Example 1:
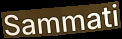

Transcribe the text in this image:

Sammati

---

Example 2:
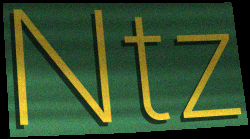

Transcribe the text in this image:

Ntz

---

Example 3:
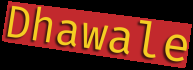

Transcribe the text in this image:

Dhawale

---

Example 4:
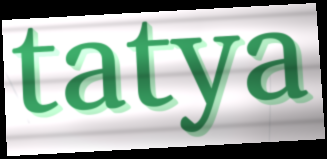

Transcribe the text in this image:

tatya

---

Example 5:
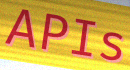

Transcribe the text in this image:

APIs